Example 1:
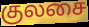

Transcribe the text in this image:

குலசை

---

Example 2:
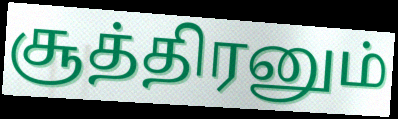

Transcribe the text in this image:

சூத்திரனும்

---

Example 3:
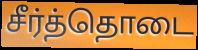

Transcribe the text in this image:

சீர்த்தொடை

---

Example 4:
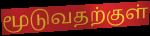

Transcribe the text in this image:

மூடுவதற்குள்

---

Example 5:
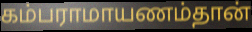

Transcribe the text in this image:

கம்பராமாயணம்தான்